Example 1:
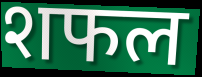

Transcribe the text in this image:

शफल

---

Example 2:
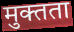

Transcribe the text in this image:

मुक्तता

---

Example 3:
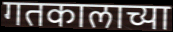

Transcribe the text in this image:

गतकालाच्या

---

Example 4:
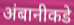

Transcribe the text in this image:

अंबानीकडे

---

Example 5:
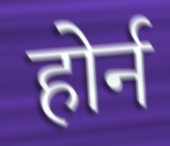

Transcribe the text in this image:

होर्न